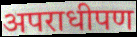
अपराधीपण